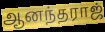
ஆனந்தராஜ்